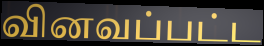
வினவப்பட்ட